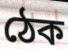
ঠেক